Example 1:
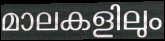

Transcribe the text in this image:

മാലകളിലും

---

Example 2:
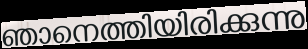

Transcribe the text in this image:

ഞാനെത്തിയിരിക്കുന്നു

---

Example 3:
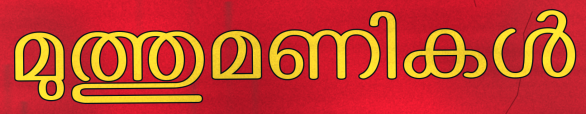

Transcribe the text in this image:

മുത്തുമണികൾ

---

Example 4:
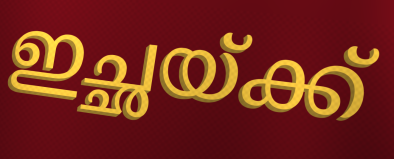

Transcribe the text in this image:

ഇച്ഛയ്ക്ക്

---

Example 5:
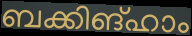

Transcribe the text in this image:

ബക്കിങ്ഹാം